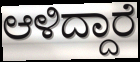
ಆಳಿದ್ದಾರೆ